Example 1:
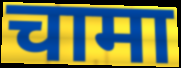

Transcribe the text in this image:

चामा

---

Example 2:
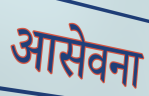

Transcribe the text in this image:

आसेवना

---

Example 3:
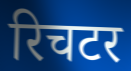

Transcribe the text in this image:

रिचटर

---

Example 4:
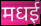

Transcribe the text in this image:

मधई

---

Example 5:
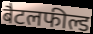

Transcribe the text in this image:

बैटलफील्ड